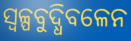
ସ୍ଵଳ୍ପବୁଦ୍ଧିବଳେନ